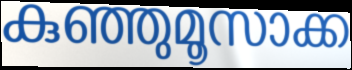
കുഞ്ഞുമൂസാക്ക